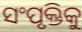
ସଂପୃକ୍ତିକୁ